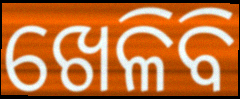
ଖେଳିବି